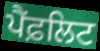
ਪੈਂਫ਼ਲਿਟ